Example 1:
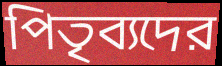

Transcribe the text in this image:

পিতৃব্যদের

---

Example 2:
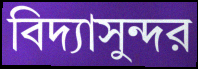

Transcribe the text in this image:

বিদ্যাসুন্দর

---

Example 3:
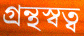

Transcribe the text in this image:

গ্রন্থস্বত্ব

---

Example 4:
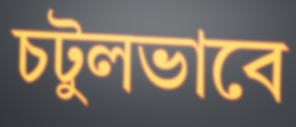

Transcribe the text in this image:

চটুলভাবে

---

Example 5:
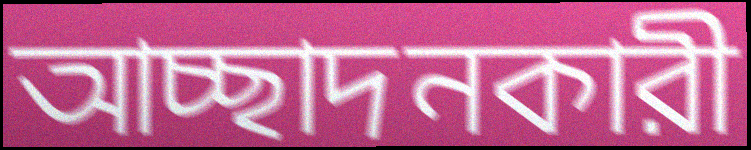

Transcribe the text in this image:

আচ্ছাদনকারী